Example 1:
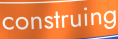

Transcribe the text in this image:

construing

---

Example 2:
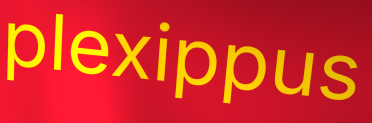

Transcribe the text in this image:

plexippus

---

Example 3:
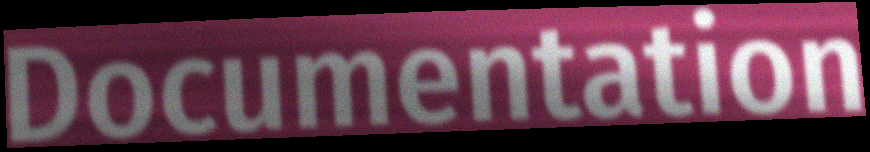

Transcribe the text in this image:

Documentation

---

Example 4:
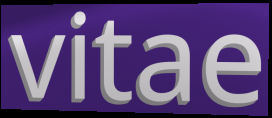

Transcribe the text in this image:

vitae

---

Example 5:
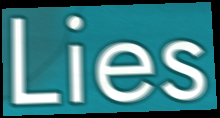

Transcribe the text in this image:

Lies